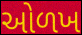
ઓળખ